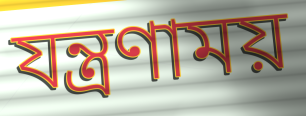
যন্ত্রণাময়